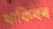
থাকিবৰ